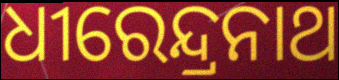
ଧୀରେନ୍ଦ୍ରନାଥ